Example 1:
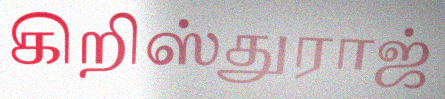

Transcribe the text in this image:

கிறிஸ்துராஜ்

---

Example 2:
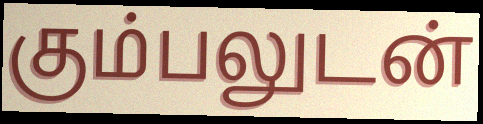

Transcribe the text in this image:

கும்பலுடன்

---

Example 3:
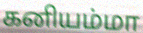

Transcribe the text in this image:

கனியம்மா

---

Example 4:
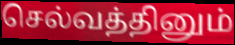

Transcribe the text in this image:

செல்வத்தினும்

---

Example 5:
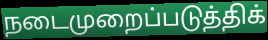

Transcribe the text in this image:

நடைமுறைப்படுத்திக்